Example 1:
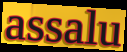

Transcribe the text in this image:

assalu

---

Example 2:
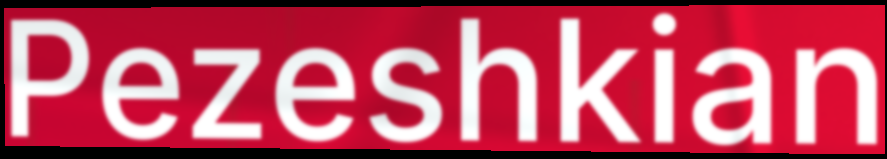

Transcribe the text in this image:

Pezeshkian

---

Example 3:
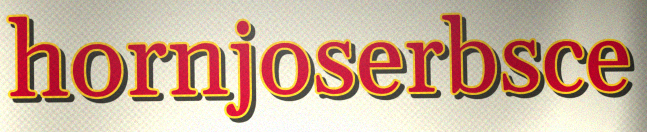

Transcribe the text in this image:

hornjoserbsce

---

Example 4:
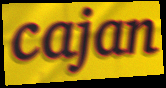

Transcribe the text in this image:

cajan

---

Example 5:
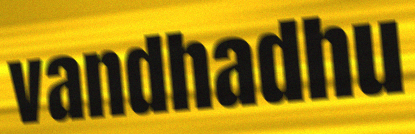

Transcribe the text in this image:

vandhadhu